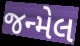
જન્મેલ